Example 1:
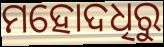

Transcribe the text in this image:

ମହୋଦଧିରୁ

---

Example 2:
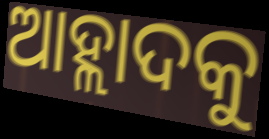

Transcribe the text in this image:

ଆହ୍ଲାଦକୁ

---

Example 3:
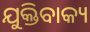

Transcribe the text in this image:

ଯୁକ୍ତିବାକ୍ୟ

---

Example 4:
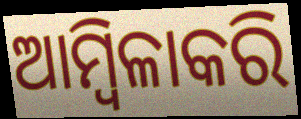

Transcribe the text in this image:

ଆମ୍ବିଳାକରି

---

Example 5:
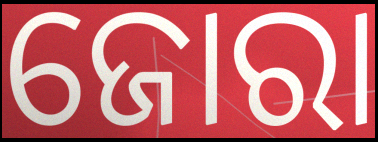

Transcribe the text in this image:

ଜୋରା